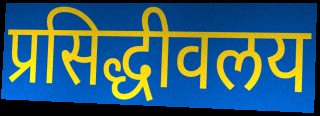
प्रसिद्धीवलय